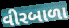
વીરબાળા